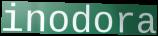
inodora